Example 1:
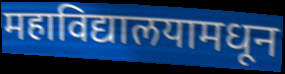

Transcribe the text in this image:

महाविद्यालयामधून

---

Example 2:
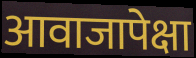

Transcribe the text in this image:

आवाजापेक्षा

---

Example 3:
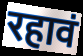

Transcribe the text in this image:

रहावं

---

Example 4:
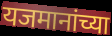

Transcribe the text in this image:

यजमानांच्या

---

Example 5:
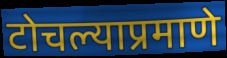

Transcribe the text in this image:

टोचल्याप्रमाणे